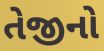
તેજીનો